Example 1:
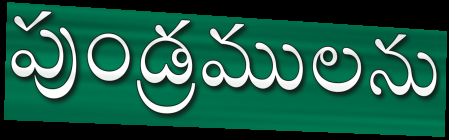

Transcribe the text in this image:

పుండ్రములను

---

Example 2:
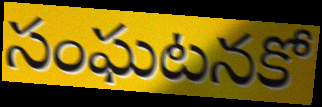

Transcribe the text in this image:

సంఘటనకో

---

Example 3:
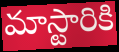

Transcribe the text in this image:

మాస్టారికి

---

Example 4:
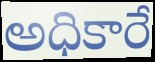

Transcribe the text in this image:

అధికారే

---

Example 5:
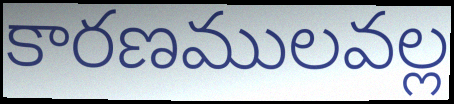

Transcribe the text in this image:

కారణములవల్ల